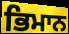
ਭਿਮਾਨ